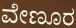
ವೇಣೂರ